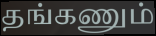
தங்கணும்